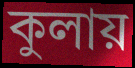
কুলায়